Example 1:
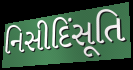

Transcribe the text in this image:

નિસીદિંસૂતિ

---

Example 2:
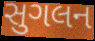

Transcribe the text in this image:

સુગલન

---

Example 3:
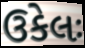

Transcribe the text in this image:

ઉકેલઃ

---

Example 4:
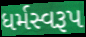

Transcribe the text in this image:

ધર્મસ્વરૂપ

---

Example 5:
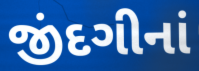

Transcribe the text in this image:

જીંદગીનાં